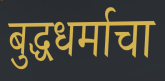
बुद्धधर्माचा